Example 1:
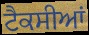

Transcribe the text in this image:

ਟੈਕਸੀਆਂ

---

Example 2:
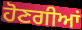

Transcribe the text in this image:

ਹੋਣਗੀਆਂ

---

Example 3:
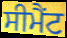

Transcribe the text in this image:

ਸੀਮੈੰਟ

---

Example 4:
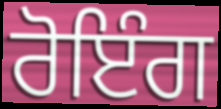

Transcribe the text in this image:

ਰੋਇੰਗ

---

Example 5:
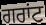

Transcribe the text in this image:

ਗਰਾਂਟ